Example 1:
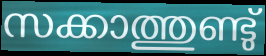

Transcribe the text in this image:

സക്കാത്തുണ്ടു്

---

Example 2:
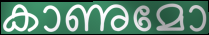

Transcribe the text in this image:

കാണുമോ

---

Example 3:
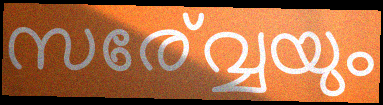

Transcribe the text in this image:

സര്വ്വേയും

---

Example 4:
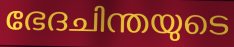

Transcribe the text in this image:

ഭേദചിന്തയുടെ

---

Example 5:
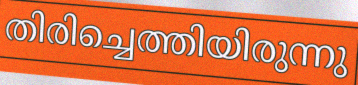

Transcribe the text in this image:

തിരിച്ചെത്തിയിരുന്നു